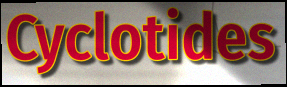
Cyclotides